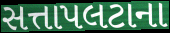
સત્તાપલટાના